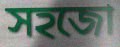
সহজো